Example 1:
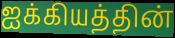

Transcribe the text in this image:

ஐக்கியத்தின்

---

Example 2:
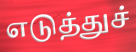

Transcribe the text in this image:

எடுத்துச்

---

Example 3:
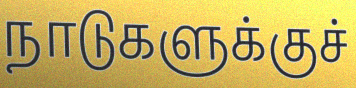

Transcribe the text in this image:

நாடுகளுக்குச்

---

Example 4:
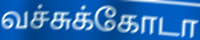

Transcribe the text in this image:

வச்சுக்கோடா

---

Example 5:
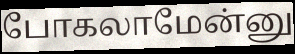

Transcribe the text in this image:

போகலாமேன்னு